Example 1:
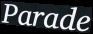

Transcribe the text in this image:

Parade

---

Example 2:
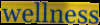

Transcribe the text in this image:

wellness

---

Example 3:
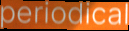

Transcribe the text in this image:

periodical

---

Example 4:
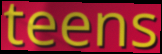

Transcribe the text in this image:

teens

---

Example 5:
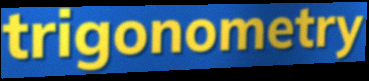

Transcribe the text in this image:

trigonometry